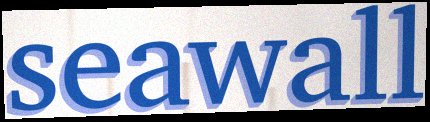
seawall